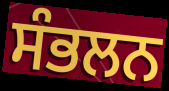
ਸੰਭਲਨ